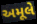
અમૂલે